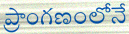
ప్రాంగణంలోనే